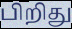
பிறிது